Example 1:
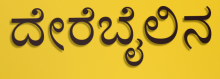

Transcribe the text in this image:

ದೇರೆಬೈಲಿನ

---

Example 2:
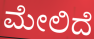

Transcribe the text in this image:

ಮೇಲಿದೆ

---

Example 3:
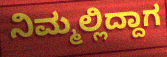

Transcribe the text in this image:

ನಿಮ್ಮಲ್ಲಿದ್ದಾಗ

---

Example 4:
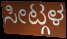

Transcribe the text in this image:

ಸೀಟ್ಗಳ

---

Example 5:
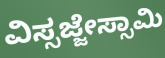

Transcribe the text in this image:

ವಿಸ್ಸಜ್ಜೇಸ್ಸಾಮಿ